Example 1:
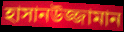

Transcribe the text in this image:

হাসানউজ্জামান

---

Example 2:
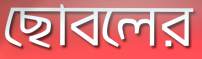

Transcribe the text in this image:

ছোবলের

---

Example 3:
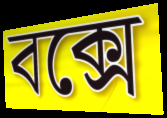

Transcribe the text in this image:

বক্সে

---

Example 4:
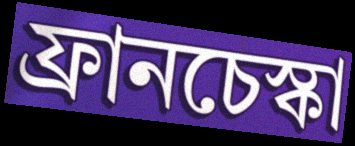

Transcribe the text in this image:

ফ্রানচেস্কা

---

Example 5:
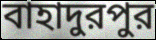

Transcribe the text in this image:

বাহাদুরপুর